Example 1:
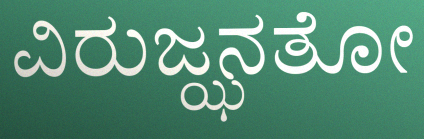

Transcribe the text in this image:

ವಿರುಜ್ಝನತೋ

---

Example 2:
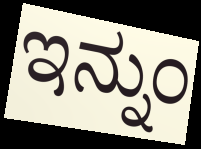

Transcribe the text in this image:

ಇನ್ನುಂ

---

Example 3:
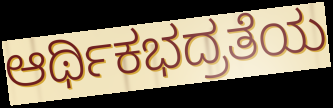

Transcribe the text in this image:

ಆರ್ಥಿಕಭದ್ರತೆಯ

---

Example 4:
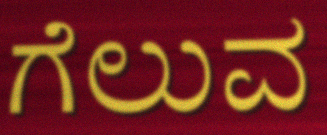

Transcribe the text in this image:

ಗೆಲುವ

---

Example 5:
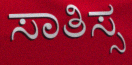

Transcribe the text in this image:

ಸಾತಿಸ್ಸ